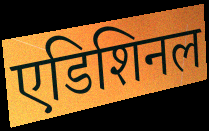
एडिशिनल